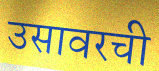
उसावरची